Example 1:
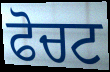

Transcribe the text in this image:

ਫੋਚਟ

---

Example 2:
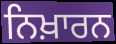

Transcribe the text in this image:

ਨਿਖ਼ਾਰਨ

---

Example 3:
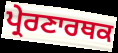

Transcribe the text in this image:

ਪ੍ਰੇਰਣਾਰਥਕ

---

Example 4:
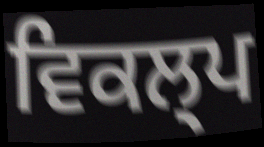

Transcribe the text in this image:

ਵਿਕਲ੍ਪ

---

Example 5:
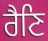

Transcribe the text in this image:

ਰੈਣਿ